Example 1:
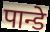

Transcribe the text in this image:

पान्डे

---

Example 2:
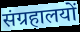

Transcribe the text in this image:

संग्रहालयों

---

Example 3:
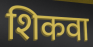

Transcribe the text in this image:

शिकवा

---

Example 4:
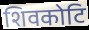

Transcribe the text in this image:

शिवकोटि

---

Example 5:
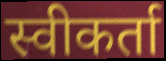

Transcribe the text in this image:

स्वीकर्ता